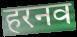
हरनव